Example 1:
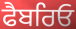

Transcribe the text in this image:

ਫੈਬਰਿਓ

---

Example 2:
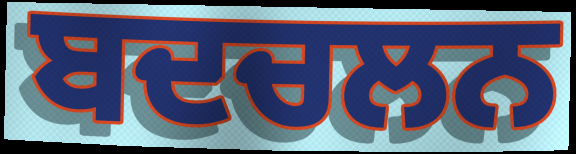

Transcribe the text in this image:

ਬਦਚਲਨ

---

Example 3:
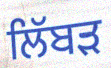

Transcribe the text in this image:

ਲਿੱਬੜ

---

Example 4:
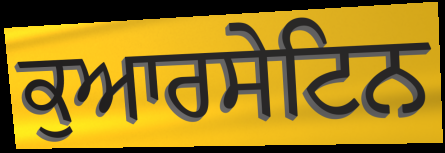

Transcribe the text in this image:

ਕੁਆਰਸੇਟਿਨ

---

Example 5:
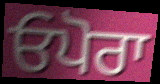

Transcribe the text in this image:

ਓਪੋਰਾ